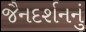
જૈનદર્શનનું